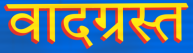
वादग्रस्त